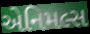
એનિમલ્સ